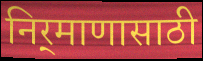
निर्माणासाठी